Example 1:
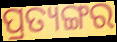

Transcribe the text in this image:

ପ୍ରତ୍ୟଙ୍ଗର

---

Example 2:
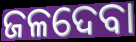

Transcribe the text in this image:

ଜଳଦେବା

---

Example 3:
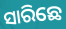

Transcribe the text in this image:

ସାରିଛେ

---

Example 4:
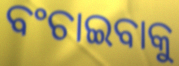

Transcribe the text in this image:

ବଂଚାଇବାକୁ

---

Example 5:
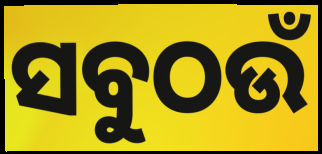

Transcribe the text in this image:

ସବୁଠଉଁ